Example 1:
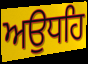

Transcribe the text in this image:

ਅਉਧਹਿ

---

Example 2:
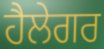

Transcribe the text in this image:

ਹੈਲੇਗਰ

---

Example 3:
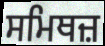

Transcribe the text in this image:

ਸਮਿਥਜ਼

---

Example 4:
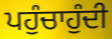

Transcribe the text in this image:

ਪਹੁੰਚਾਹੁੰਦੀ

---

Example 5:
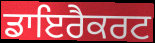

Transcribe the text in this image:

ਡਾਇਰੈਕਰਟ